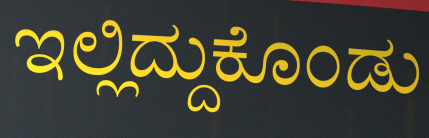
ಇಲ್ಲಿದ್ದುಕೊಂಡು